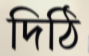
দিঠি